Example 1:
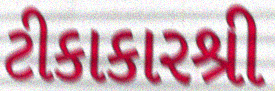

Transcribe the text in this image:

ટીકાકારશ્રી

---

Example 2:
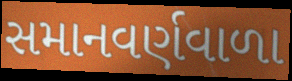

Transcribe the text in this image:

સમાનવર્ણવાળા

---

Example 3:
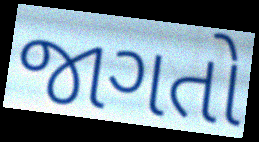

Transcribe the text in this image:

જાગતો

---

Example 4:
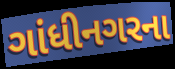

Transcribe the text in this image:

ગાંધીનગરના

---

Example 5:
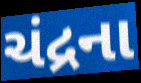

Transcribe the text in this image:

ચંદ્રના